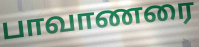
பாவாணரை